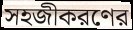
সহজীকরণের